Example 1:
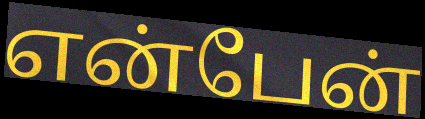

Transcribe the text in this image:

என்பேன்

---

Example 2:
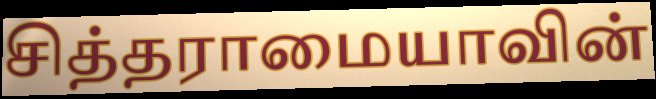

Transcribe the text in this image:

சித்தராமையாவின்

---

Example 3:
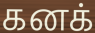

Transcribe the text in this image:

கனக்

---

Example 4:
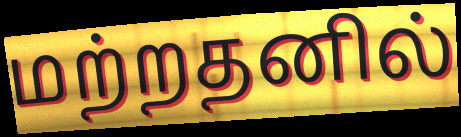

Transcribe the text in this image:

மற்றதனில்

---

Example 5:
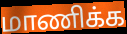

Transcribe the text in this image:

மாணிக்க